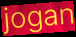
jogan